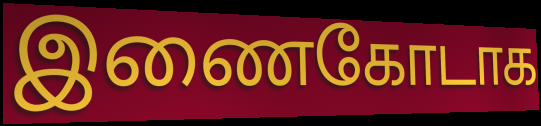
இணைகோடாக